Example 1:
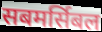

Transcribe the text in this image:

सबमर्सिबल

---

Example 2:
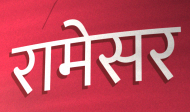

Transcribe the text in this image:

रामेसर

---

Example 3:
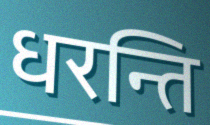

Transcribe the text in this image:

धरन्ति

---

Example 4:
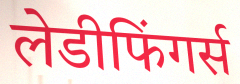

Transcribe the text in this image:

लेडीफिंगर्स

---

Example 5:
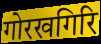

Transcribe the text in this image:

गोरखगिरि